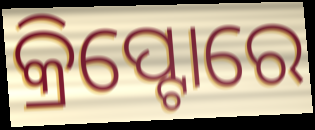
କ୍ରିପ୍ଟୋରେ